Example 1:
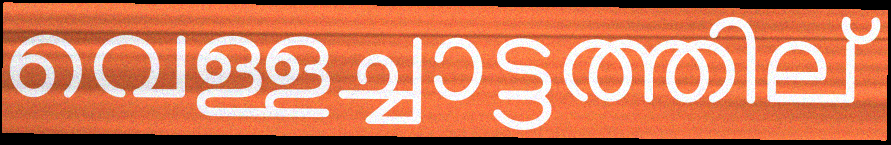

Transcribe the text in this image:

വെള്ളച്ചാട്ടത്തില്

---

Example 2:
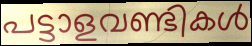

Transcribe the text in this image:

പട്ടാളവണ്ടികൾ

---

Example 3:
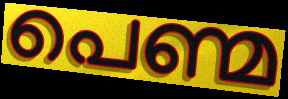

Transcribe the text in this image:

പെണ്മ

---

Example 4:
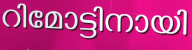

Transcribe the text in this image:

റിമോട്ടിനായി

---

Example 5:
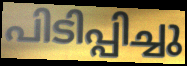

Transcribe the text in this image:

പിടിപ്പിച്ചു